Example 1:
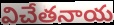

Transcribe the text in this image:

విచేతనాయ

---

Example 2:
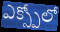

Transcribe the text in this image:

ఎక్స్పోలో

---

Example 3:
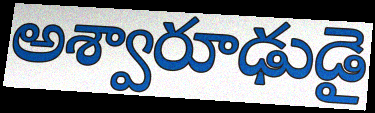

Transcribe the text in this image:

అశ్వారూఢుడై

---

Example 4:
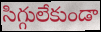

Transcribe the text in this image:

సిగ్గులేకుండా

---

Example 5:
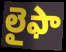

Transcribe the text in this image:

లైఫా